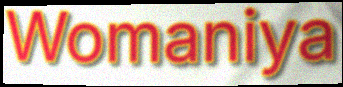
Womaniya